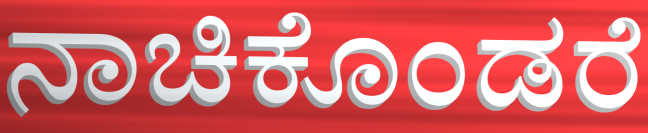
ನಾಚಿಕೊಂಡರೆ